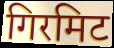
गिरमिट